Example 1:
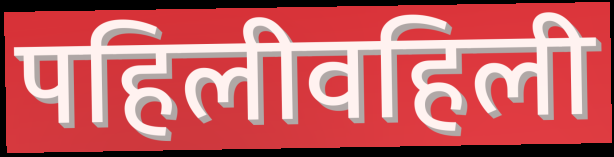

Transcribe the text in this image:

पहिलीवहिली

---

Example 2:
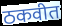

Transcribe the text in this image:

ठकवीत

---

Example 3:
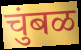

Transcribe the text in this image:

चुंबळ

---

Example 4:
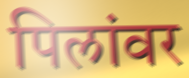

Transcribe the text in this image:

पिलांवर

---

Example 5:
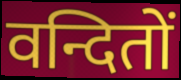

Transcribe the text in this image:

वन्दितों